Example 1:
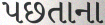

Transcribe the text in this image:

પછતાના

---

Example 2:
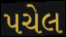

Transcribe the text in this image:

પચેલ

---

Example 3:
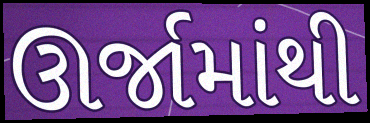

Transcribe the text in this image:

ઊર્જામાંથી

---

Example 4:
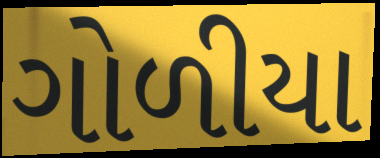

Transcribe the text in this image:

ગોળીયા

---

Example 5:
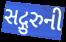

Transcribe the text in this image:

સદ્ગુરુની